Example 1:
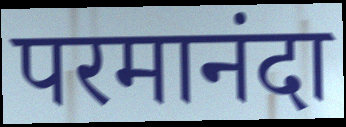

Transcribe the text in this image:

परमानंदा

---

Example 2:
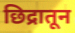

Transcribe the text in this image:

छिद्रातून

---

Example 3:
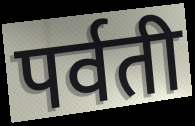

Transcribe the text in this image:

पर्वती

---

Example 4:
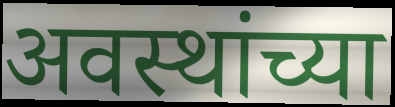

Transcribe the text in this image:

अवस्थांच्या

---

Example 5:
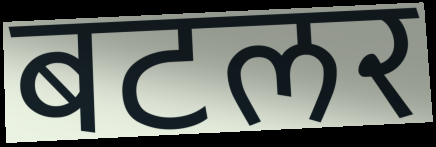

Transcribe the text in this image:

बटलर